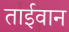
ताईवान